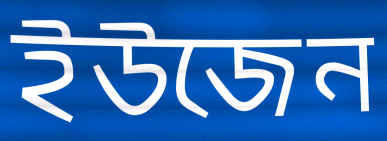
ইউজেন